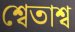
শ্বেতাশ্ব